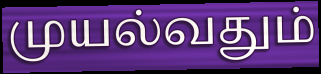
முயல்வதும்